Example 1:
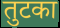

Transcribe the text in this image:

तुटका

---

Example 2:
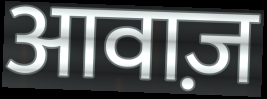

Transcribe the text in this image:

आवाज़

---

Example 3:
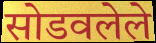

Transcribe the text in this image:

सोडवलेले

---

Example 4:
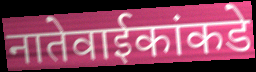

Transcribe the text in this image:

नातेवाईकांकडे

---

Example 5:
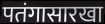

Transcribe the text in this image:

पतंगासारखा